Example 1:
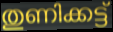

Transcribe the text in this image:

തുണിക്കട്ട്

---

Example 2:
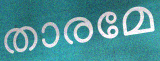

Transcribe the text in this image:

താരമേ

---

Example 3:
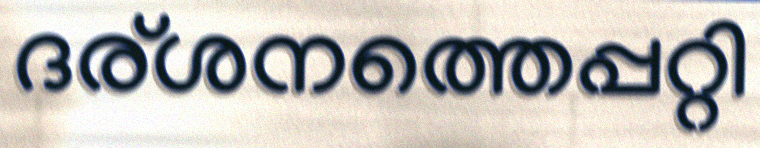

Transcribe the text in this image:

ദര്ശനത്തെപ്പറ്റി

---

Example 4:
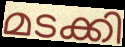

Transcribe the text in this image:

മടക്കി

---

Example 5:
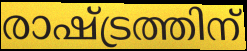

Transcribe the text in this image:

രാഷ്ട്രത്തിന്